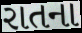
રાતના